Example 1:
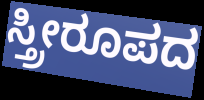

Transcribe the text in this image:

ಸ್ತ್ರೀರೂಪದ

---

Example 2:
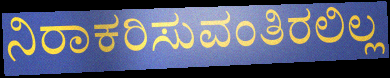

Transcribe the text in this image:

ನಿರಾಕರಿಸುವಂತಿರಲಿಲ್ಲ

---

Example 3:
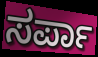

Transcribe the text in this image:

ಸರ್ಪಾ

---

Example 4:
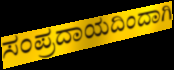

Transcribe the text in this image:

ಸಂಪ್ರದಾಯದಿಂದಾಗಿ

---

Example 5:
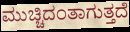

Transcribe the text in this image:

ಮುಚ್ಚಿದಂತಾಗುತ್ತದೆ